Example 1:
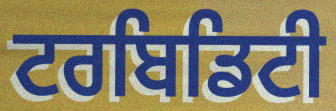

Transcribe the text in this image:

ਟਰਬਿਡਿਟੀ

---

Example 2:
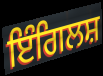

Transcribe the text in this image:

ਇੰਗਿਲਸ਼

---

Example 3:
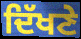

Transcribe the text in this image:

ਦਿੱਖਣੇ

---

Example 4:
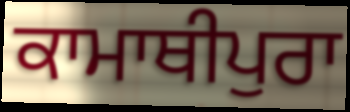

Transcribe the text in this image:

ਕਾਮਾਥੀਪੁਰਾ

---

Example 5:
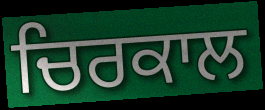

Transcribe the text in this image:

ਚਿਰਕਾਲ